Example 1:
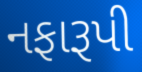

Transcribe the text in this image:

નફારૂપી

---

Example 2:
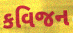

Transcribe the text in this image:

કવિજન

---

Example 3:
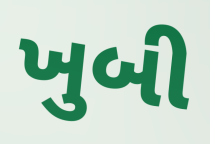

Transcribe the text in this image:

ખુબી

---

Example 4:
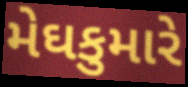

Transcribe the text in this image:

મેઘકુમારે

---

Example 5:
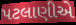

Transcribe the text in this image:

પટલાણીએ